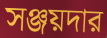
সঞ্জয়দার